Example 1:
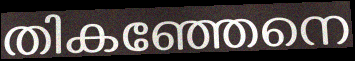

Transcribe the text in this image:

തികഞ്ഞേനെ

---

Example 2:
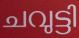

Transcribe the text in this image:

ചവുട്ടി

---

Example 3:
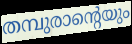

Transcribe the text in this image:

തമ്പുരാന്റെയും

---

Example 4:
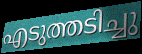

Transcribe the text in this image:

എടുത്തടിച്ചു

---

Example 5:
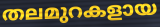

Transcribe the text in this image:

തലമുറകളായ